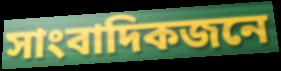
সাংবাদিকজনে